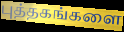
புத்தகங்களை